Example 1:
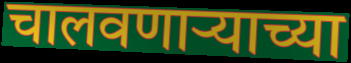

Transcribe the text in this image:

चालवणार्‍याच्या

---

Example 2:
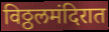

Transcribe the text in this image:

विठ्ठलमंदिरात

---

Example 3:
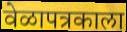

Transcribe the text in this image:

वेळापत्रकाला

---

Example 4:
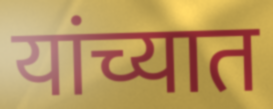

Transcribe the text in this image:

यांच्यात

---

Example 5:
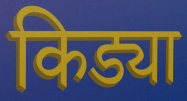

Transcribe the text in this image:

किड्या